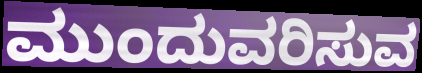
ಮುಂದುವರಿಸುವ